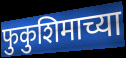
फुकुशिमाच्या